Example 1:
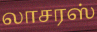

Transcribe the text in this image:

லாசரஸ்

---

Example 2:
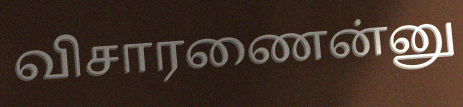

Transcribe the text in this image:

விசாரணைன்னு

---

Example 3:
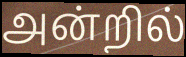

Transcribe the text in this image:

அன்றில்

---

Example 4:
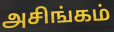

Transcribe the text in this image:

அசிங்கம்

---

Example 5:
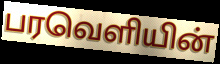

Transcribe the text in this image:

பரவெளியின்